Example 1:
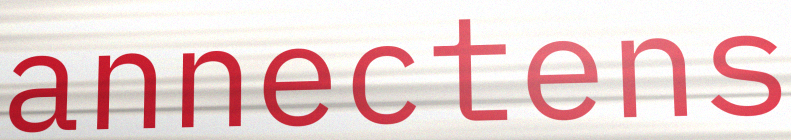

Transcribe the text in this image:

annectens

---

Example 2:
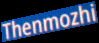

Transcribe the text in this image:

Thenmozhi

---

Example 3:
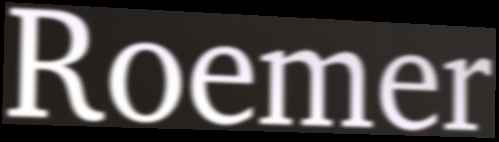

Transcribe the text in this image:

Roemer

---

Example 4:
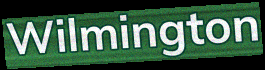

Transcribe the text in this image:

Wilmington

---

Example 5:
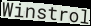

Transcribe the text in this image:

Winstrol